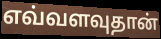
எவ்வளவுதான்